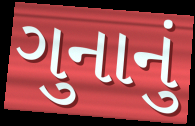
ગુનાનું